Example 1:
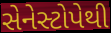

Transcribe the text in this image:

સેનેસ્ટોપેથી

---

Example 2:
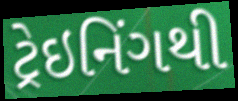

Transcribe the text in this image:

ટ્રેઇનિંગથી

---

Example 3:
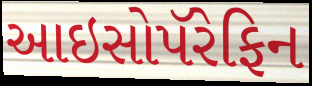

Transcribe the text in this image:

આઇસોપૅરેફિન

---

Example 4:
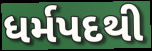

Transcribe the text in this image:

ધર્મપદથી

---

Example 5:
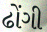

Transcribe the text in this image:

ઢોંગી